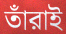
তাঁরাই